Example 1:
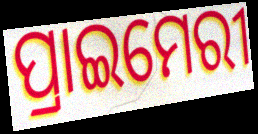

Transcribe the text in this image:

ପ୍ରାଇମେରୀ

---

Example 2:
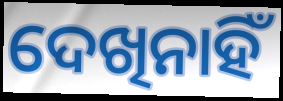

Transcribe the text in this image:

ଦେଖିନାହିଁ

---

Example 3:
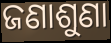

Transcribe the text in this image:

ଜଣାଶୁଣା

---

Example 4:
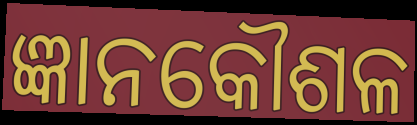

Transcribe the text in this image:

ଜ୍ଞାନକୌଶଳ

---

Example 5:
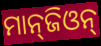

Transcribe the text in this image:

ମାନ୍‌ଜିଓନ୍